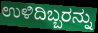
ಉಳಿದಿಬ್ಬರನ್ನು